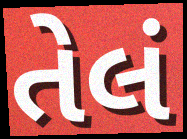
તેલં